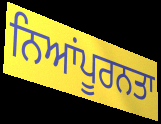
ਨਿਆਂਪੂਰਨਤਾ